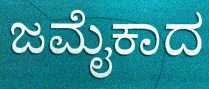
ಜಮೈಕಾದ